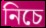
নিচে